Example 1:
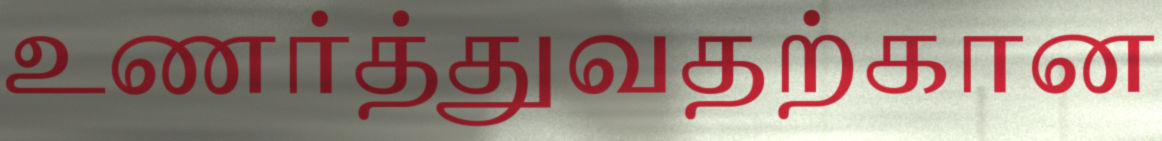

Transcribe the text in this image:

உணர்த்துவதற்கான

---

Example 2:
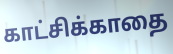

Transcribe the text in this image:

காட்சிக்காதை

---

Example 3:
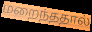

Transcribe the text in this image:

மறைந்ததால்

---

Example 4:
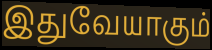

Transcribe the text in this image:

இதுவேயாகும்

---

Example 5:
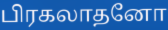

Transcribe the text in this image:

பிரகலாதனோ